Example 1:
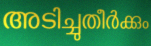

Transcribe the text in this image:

അടിച്ചുതീർക്കും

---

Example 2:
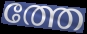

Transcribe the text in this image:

ത്തേ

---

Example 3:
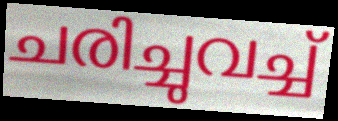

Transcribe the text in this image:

ചരിച്ചുവച്ച്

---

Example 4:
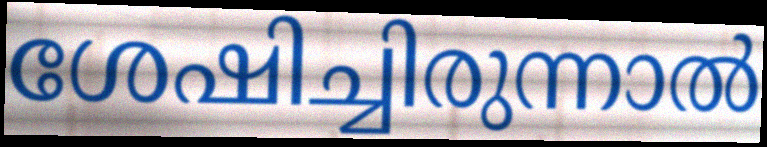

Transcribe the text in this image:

ശേഷിച്ചിരുന്നാൽ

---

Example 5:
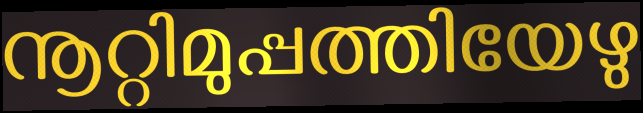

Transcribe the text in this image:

നൂറ്റിമുപ്പത്തിയേഴു